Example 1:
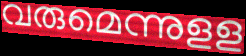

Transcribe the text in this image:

വരുമെന്നുളള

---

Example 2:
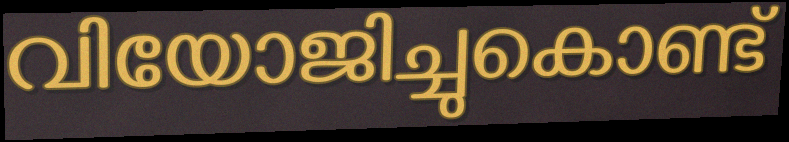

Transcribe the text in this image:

വിയോജിച്ചുകൊണ്ട്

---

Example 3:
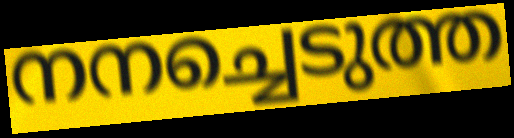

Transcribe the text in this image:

നനച്ചെടുത്ത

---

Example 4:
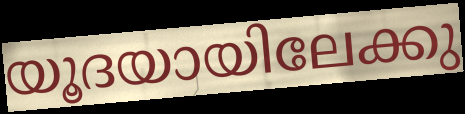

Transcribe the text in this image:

യൂദയായിലേക്കു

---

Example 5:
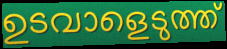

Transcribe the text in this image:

ഉടവാളെടുത്ത്